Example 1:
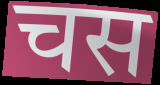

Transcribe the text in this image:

चस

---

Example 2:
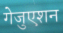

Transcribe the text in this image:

गेजुएशन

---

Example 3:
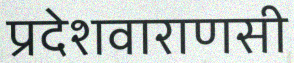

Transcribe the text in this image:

प्रदेशवाराणसी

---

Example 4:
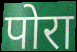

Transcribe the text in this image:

पोरा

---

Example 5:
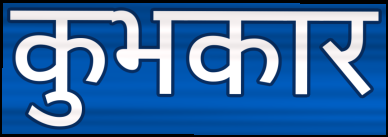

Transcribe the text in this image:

कुभकार